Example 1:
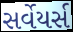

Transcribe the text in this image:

સર્વેયર્સ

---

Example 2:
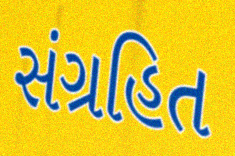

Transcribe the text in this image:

સંગ્રહિત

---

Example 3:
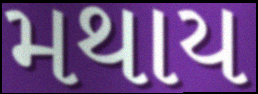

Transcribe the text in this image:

મથાય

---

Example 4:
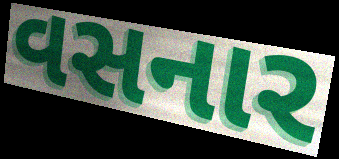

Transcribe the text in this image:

વસનાર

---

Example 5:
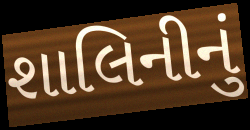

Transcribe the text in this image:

શાલિનીનું